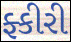
ફ્કીરી